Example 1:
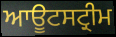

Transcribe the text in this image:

ਆਊਟਸਟ੍ਰੀਮ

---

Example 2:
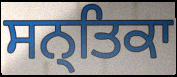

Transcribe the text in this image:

ਸਨ੍ਤਿਕਾ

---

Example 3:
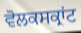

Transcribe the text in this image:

ਵੋਲਕਸਕ੍ਰਾਂਟ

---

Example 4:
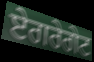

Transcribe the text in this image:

ਏਗਰੇਗੇਟ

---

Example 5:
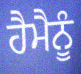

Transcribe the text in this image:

ਹੈਮੈਨੂੰ